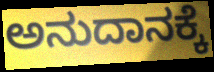
ಅನುದಾನಕ್ಕೆ